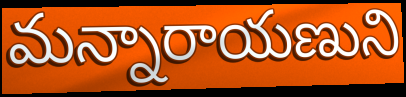
మన్నారాయణుని